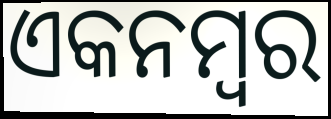
ଏକନମ୍ବର